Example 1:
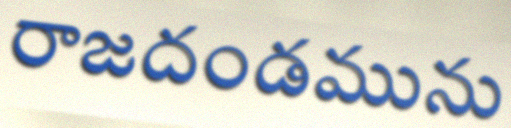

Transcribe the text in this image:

రాజదండమును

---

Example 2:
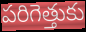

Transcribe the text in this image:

పరిగెత్తుకు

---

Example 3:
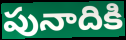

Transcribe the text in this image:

పునాదికి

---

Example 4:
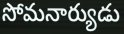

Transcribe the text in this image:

సోమనార్యుడు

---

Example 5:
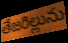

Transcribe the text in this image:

తేజరిల్లును